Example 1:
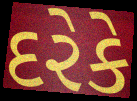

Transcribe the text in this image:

દરેકે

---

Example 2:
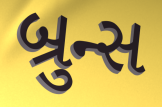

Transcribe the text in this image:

બ્રુન્સ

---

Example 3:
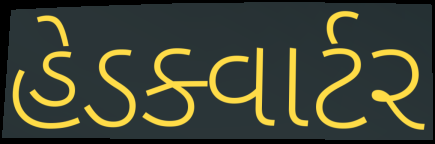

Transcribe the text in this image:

હેડક્વાર્ટર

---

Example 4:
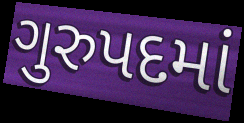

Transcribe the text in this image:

ગુરુપદમાં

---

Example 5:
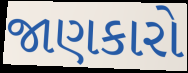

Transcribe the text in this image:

જાણકારો